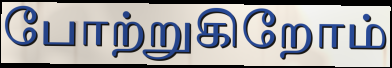
போற்றுகிறோம்